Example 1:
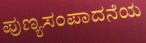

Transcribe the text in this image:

ಪುಣ್ಯಸಂಪಾದನೆಯ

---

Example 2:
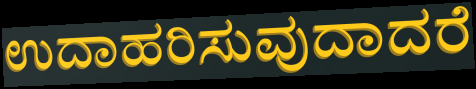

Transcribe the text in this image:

ಉದಾಹರಿಸುವುದಾದರೆ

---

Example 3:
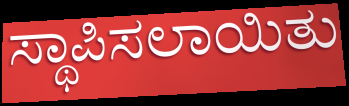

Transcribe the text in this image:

ಸ್ಥಾಪಿಸಲಾಯಿತು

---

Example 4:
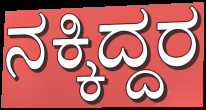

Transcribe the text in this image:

ನಕ್ಕಿದ್ದರ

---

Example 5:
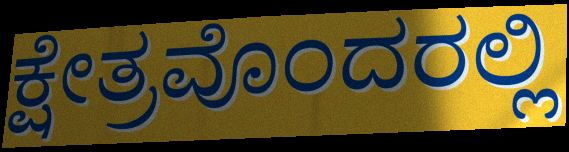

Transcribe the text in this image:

ಕ್ಷೇತ್ರವೊಂದರಲ್ಲಿ